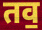
तव॒